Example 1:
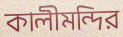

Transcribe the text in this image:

কালীমন্দির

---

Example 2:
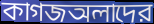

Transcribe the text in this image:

কাগজঅলাদের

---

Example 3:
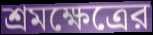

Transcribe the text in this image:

শ্রমক্ষেত্রের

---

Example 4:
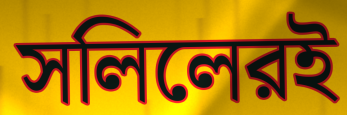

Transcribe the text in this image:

সলিলেরই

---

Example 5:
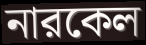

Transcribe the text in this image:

নারকেল